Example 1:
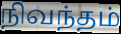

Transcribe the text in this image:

நிவந்தம்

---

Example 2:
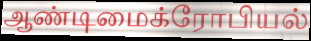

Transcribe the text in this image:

ஆண்டிமைக்ரோபியல்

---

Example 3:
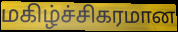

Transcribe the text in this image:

மகிழ்ச்சிகரமான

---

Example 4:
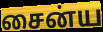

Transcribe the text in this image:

சைன்ய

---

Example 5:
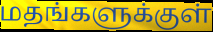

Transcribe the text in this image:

மதங்களுக்குள்